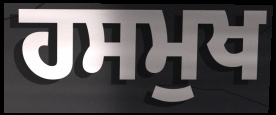
ਹਸਮੁਖ